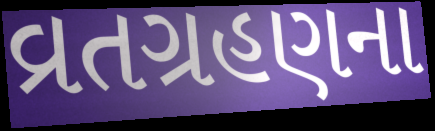
વ્રતગ્રહણના